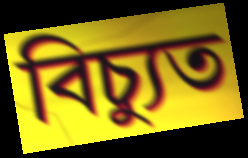
বিচ্যুত